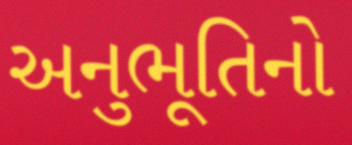
અનુભૂતિનો